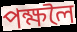
পক্ষলৈ